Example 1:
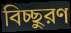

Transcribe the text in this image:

বিচ্ছুরণ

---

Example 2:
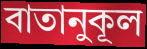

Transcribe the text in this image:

বাতানুকূল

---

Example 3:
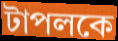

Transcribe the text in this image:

টাপলকে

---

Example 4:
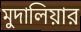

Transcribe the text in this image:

মুদালিয়ার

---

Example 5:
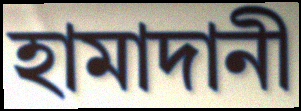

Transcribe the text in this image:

হামাদানী